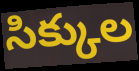
సిక్కుల